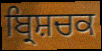
ਬ੍ਰਿਸ਼ਚਕ